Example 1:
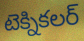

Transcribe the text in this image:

టెక్నికలర్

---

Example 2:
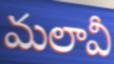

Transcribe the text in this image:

మలావీ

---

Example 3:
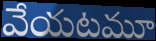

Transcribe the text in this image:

వేయటమూ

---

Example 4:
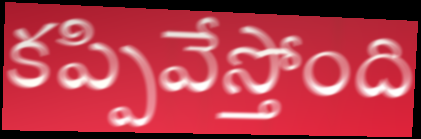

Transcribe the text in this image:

కప్పివేస్తోంది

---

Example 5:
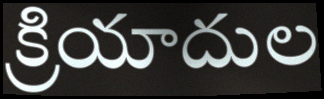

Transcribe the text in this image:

క్రియాదుల